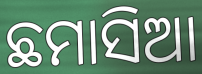
ଛମାସିଆ